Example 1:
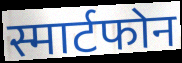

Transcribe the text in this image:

स्मार्टफोन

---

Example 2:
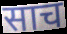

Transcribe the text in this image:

साच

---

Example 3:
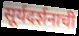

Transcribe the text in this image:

सूर्यदर्शनाची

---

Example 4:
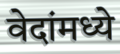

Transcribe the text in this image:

वेदांमध्ये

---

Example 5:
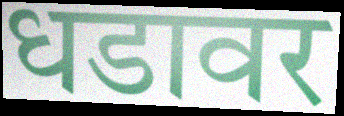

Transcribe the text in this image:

धडावर